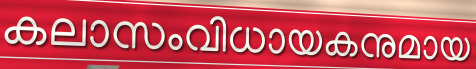
കലാസംവിധായകനുമായ